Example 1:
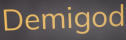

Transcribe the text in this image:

Demigod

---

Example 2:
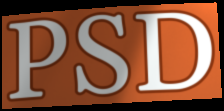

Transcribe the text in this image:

PSD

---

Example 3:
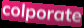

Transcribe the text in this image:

colporate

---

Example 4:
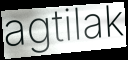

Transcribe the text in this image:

agtilak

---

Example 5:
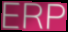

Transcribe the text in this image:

ERP